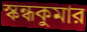
স্কন্ধকুমার